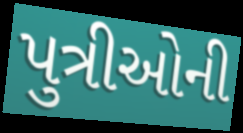
પુત્રીઓની